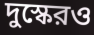
দুস্কেরও